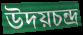
উদয়চন্দ্র